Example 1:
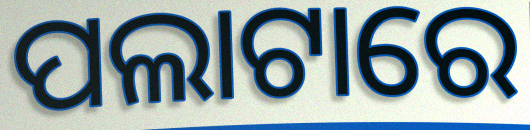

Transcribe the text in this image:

ପଲାଟାରେ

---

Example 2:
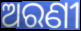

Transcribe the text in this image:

ଅରଣୀ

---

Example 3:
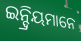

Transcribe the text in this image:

ଇନ୍ଦ୍ରିୟମାନେ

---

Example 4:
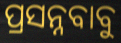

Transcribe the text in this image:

ପ୍ରସନ୍ନବାବୁ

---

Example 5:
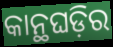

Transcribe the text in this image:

କାନ୍ଥଘଡ଼ିର